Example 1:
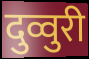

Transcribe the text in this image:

दुव्वुरी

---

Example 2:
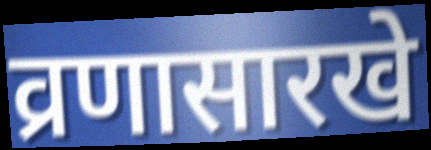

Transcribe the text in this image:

व्रणासारखे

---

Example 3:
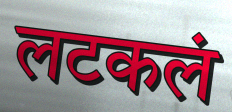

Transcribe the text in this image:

लटकलं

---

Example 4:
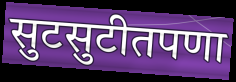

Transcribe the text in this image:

सुटसुटीतपणा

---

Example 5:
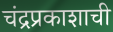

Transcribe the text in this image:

चंद्रप्रकाशाची